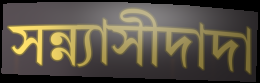
সন্ন্যাসীদাদা